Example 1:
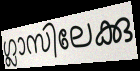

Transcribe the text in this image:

ഗ്ലാസിലേക്കു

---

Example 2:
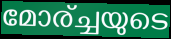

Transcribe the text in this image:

മോര്ച്ചയുടെ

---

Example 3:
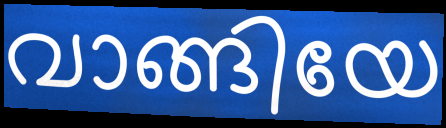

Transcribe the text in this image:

വാങ്ങിയേ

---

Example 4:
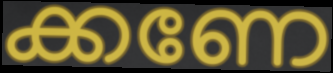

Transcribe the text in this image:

ക്കണേ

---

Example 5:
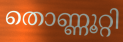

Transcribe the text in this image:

തൊണ്ണൂറ്റി